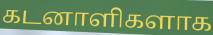
கடனாளிகளாக